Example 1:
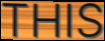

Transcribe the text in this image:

THIS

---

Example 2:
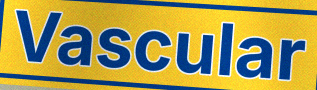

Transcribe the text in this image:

Vascular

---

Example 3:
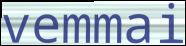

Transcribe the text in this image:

vemmai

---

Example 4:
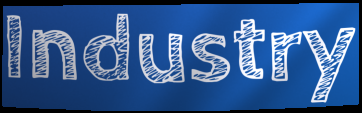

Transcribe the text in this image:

Industry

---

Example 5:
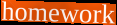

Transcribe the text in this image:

homework